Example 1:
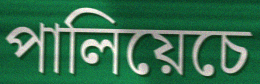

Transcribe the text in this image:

পালিয়েচে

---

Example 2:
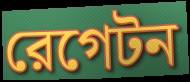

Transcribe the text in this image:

রেগেটন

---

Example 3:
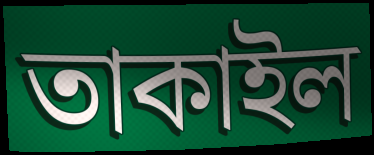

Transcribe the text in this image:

তাকাইল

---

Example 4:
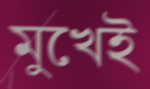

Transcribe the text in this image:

মুখেই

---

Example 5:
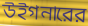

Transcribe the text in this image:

উইগনারের